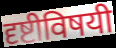
दृष्टीविषयी